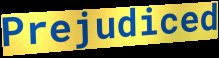
Prejudiced